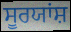
ਸੂਰਯਾਂਸ਼